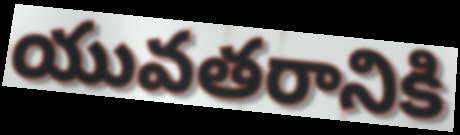
యువతరానికి